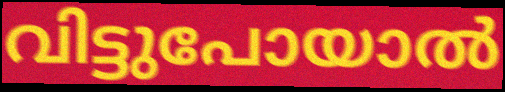
വിട്ടുപോയാൽ